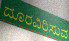
ದೂರವಿರಿಸುವ